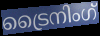
ട്രൈനിംഗ്